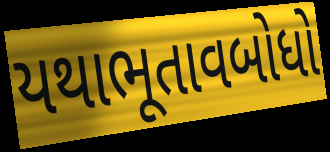
યથાભૂતાવબોધો